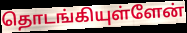
தொடங்கியுள்ளேன்